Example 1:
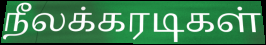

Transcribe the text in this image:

நீலக்கரடிகள்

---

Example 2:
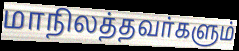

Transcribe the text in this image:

மாநிலத்தவர்களும்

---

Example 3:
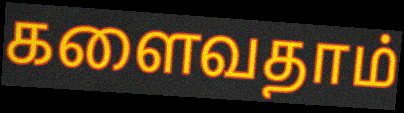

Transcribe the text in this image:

களைவதாம்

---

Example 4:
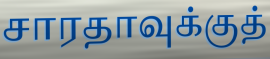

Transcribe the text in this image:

சாரதாவுக்குத்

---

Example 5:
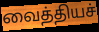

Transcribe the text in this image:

வைத்தியச்